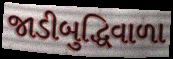
જાડીબુદ્ધિવાળા